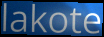
lakote